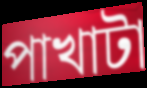
পাখাটা